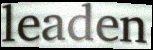
leaden